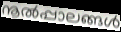
നൂൽപ്പാലങ്ങൾ